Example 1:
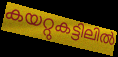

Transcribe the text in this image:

കയറ്റുകട്ടിലിൽ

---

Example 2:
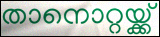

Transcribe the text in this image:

താനൊറ്റയ്ക്ക്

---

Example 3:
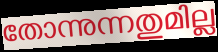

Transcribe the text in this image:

തോന്നുന്നതുമില്ല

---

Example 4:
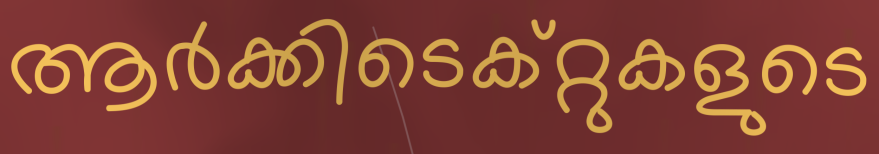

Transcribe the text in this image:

ആർക്കിടെക്റ്റുകളുടെ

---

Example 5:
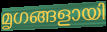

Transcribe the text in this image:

മൃഗങ്ങളായി